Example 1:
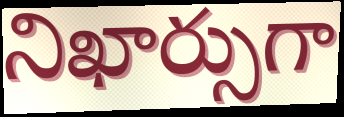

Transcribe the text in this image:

నిఖార్సుగా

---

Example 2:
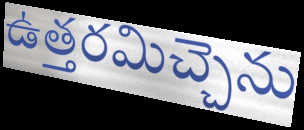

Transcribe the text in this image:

ఉత్తరమిచ్చెను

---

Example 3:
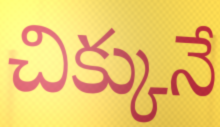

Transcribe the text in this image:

చిక్కునే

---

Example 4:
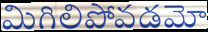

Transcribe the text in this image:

మిగిలిపోవడమో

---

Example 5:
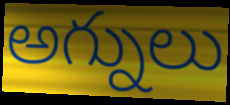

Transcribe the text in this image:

అగ్నులు